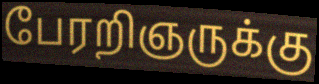
பேரறிஞருக்கு